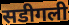
सडीगली